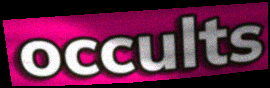
occults